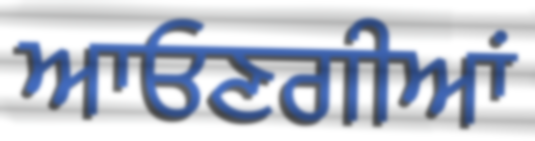
ਆਓਣਗੀਆਂ